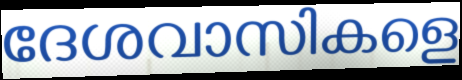
ദേശവാസികളെ